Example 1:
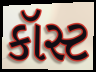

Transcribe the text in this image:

કૉસ્ટ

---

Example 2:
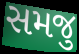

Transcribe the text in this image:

સમજુ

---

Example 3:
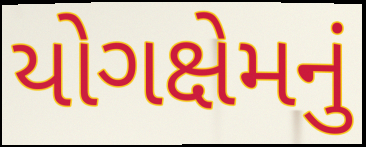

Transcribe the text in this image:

યોગક્ષેમનું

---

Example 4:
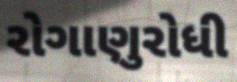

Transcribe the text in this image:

રોગાણુરોધી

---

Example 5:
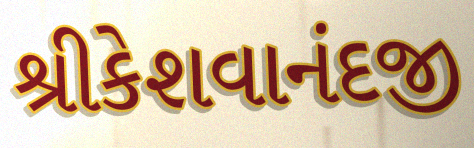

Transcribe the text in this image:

શ્રીકેશવાનંદજી